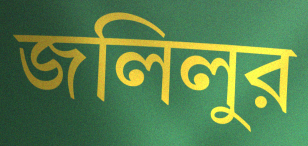
জলিলুর